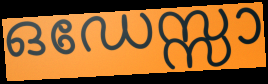
ഒഡേസ്സാ